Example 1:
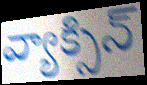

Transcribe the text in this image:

వ్యాక్సిన్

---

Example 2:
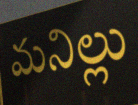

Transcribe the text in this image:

మనిల్లు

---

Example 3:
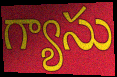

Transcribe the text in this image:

గ్యాసు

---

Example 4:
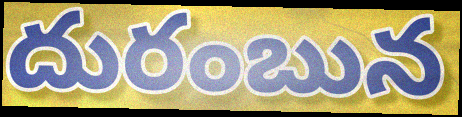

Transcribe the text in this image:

దురంబున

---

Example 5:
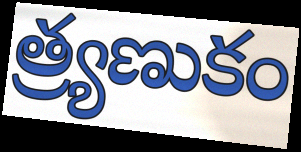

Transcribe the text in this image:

త్ర్యణుకం